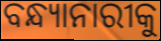
ବନ୍ଧ୍ୟାନାରୀକୁ